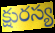
క్షురస్య